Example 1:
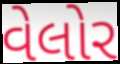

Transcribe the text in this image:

વેલોર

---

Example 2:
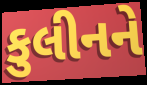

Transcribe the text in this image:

કુલીનને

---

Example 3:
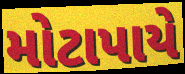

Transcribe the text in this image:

મોટાપાયે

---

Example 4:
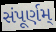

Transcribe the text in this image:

સંપૂર્ણમ્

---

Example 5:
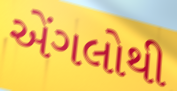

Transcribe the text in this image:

એંગલોથી